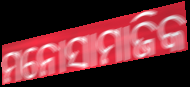
ମନୋସାମାଜିକ